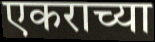
एकराच्या